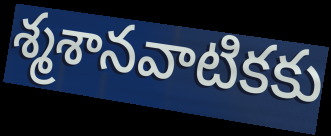
శ్మశానవాటికకు